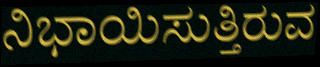
ನಿಭಾಯಿಸುತ್ತಿರುವ